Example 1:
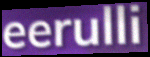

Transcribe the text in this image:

eerulli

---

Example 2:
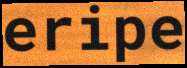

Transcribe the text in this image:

eripe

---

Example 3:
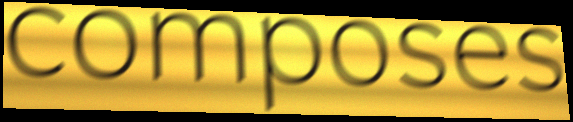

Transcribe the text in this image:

composes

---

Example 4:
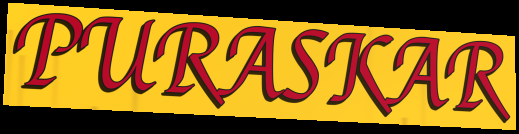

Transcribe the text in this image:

PURASKAR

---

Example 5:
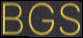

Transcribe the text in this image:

BGS